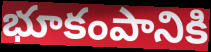
భూకంపానికి